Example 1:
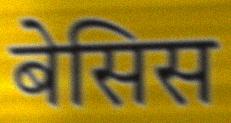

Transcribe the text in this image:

बेसिस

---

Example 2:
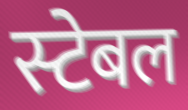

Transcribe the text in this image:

स्‍टेबल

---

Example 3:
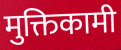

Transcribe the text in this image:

मुक्तिकामी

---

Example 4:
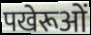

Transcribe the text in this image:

पखेरूओं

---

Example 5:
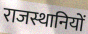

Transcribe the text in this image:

राजस्थानियों